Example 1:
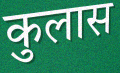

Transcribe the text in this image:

कुलास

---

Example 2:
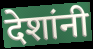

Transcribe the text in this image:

देशांनी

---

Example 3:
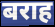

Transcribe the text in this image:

बराह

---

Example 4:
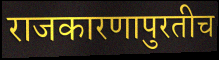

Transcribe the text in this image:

राजकारणापुरतीच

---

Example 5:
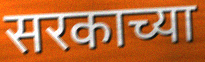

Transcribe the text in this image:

सरकाच्या